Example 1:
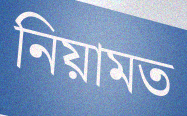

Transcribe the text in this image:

নিয়ামত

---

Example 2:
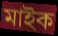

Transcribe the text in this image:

মাইক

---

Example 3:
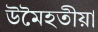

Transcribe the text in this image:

উমৈহতীয়া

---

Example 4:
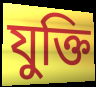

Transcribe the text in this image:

যুক্তি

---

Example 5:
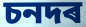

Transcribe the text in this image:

চনদৰ